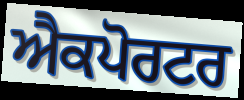
ਐਕਪੋਰਟਰ